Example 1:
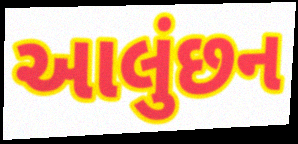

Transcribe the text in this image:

આલુંછન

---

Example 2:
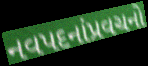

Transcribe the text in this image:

નવપદનાંપ્રવચનો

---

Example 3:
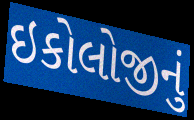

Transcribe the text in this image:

ઇકોલોજીનું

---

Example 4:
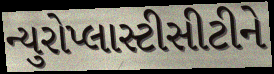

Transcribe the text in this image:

ન્યુરોપ્લાસ્ટીસીટીને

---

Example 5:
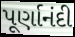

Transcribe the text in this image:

પૂર્ણાનંદી